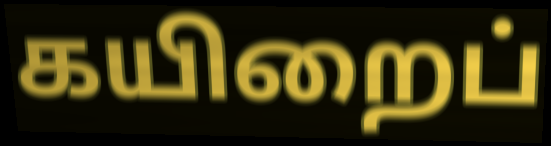
கயிறைப்